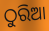
ଠୁରିଆ